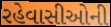
રહેવાસીઓની